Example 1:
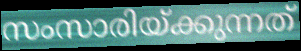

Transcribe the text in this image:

സംസാരിയ്ക്കുന്നത്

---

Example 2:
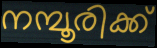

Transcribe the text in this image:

നമ്പൂരിക്ക്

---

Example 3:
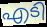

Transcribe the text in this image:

എടി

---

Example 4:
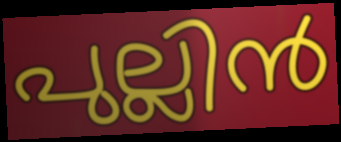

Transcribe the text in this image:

പുല്ലിൻ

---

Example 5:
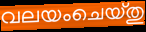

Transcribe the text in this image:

വലയംചെയ്തു